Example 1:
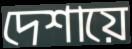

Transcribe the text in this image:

দেশায়ে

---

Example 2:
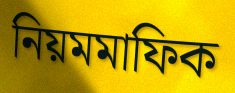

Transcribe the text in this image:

নিয়মমাফিক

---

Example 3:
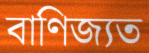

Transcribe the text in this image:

বাণিজ্যত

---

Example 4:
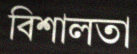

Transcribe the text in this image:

বিশালতা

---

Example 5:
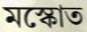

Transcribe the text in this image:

মস্কোত